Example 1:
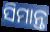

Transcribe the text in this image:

ସିମାନ୍ତ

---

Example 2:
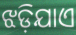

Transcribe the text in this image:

ଝଡ଼ିଯାଏ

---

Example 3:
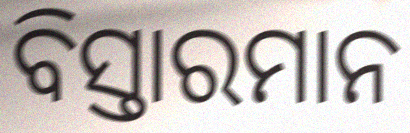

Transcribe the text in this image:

ବିସ୍ତାରମାନ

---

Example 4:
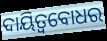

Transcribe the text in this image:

ଦାୟିତ୍ବବୋଧର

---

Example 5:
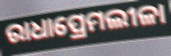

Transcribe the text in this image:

ରାଧାପ୍ରେମଲୀଳା